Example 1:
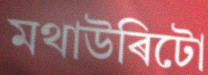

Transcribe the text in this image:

মথাউৰিটো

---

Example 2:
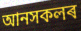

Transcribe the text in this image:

আনসকলৰ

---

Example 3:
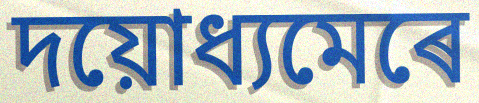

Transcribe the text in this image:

দয়োধ্যমেৰে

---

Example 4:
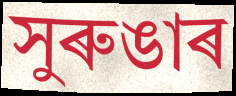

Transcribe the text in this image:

সুৰুঙাৰ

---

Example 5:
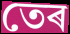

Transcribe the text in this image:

তেৰ